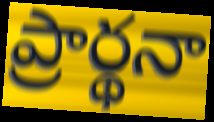
ప్రార్థనా